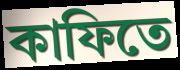
কাফিতে